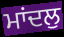
ਮਾਂਦਲੁ